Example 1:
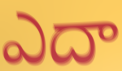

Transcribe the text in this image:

ఎదా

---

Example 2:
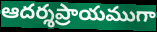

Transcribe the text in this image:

ఆదర్శప్రాయముగా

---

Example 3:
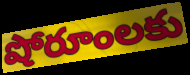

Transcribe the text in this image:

షోరూంలకు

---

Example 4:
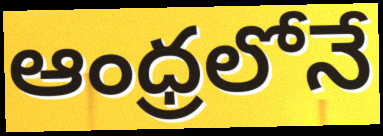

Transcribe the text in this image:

ఆంధ్రలోనే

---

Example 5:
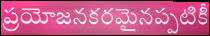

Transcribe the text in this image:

ప్రయోజనకరమైనప్పటికీ